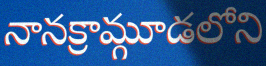
నానక్రామ్గూడలోని